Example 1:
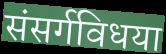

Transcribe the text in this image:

संसर्गविधया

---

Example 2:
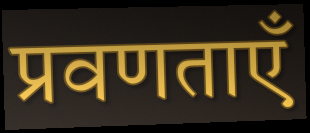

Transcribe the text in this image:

प्रवणताएँ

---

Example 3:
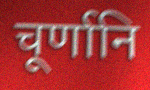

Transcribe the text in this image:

चूर्णानि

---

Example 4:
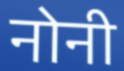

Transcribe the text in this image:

नोनी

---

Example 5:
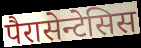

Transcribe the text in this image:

पैरासेन्टेसिस